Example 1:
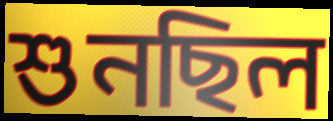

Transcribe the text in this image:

শুনছিল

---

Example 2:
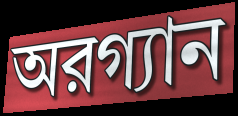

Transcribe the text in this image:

অরগ্যান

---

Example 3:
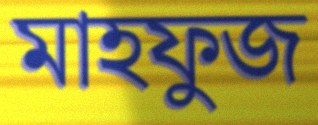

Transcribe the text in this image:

মাহফুজ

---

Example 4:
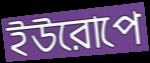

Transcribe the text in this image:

ইউরোপে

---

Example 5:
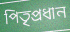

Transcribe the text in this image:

পিতৃপ্রধান